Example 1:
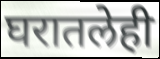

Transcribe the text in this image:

घरातलेही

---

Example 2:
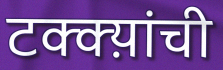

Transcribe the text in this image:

टक्क्य़ांची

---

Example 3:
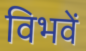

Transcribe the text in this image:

विभवें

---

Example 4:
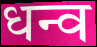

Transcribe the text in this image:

धन्व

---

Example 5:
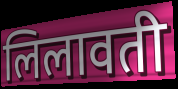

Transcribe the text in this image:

लिलावती